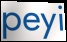
peyi